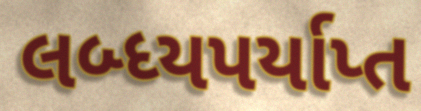
લબ્ધ્યપર્યાપ્ત